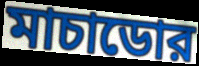
মাচাডোর